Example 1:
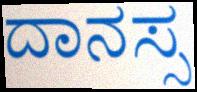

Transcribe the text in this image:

ದಾನಸ್ಸ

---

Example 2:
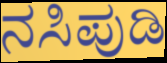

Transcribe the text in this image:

ನಸಿಪುಡಿ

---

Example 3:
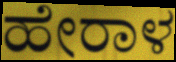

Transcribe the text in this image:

ಹೇರಾಳ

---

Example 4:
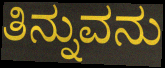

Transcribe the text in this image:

ತಿನ್ನುವನು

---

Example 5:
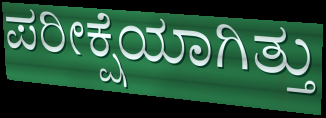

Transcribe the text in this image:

ಪರೀಕ್ಷೆಯಾಗಿತ್ತು